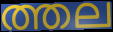
ത്തല